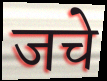
जचे